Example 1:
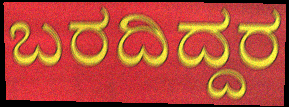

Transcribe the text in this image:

ಬರದಿದ್ದರ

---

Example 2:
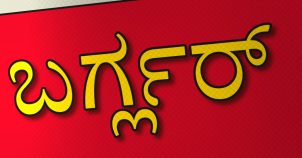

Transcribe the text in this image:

ಬರ್ಗ್ಲರ್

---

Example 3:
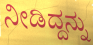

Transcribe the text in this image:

ನೀಡಿದ್ದನ್ನು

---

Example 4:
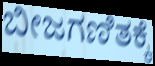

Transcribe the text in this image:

ಬೀಜಗಣಿತಕ್ಕೆ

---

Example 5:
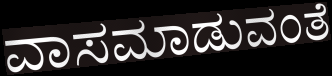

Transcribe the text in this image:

ವಾಸಮಾಡುವಂತೆ